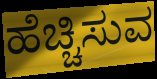
ಹೆಚ್ಚಿಸುವ